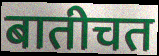
बातीचत